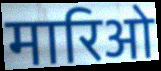
मारिओ